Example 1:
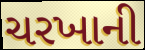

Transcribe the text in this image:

ચરખાની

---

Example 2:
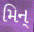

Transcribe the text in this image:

મિન્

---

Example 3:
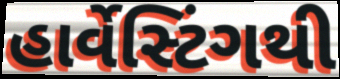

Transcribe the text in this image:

હાર્વેસ્ટિંગથી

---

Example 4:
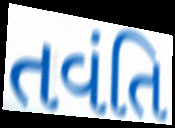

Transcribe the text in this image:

તવંતિ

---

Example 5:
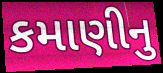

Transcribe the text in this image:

કમાણીનુ